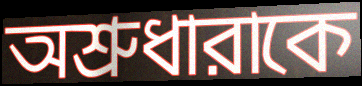
অশ্রুধারাকে